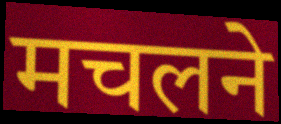
मचलने